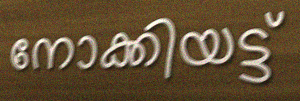
നോക്കിയട്ട്